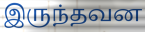
இருந்தவன